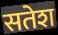
सतेश